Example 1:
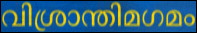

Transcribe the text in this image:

വിശ്രാന്തിമഗമം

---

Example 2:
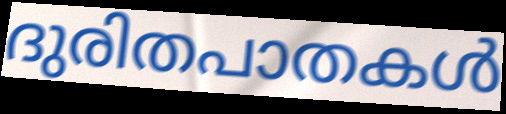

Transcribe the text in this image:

ദുരിതപാതകൾ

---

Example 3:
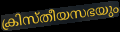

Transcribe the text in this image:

ക്രിസ്തീയസഭയും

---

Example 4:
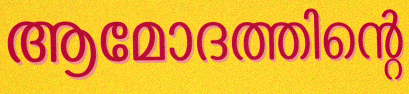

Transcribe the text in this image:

ആമോദത്തിന്റെ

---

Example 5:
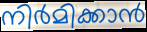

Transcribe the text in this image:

നിർമിക്കാൻ